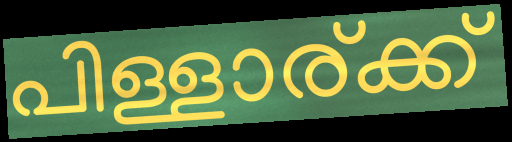
പിള്ളാര്ക്ക്